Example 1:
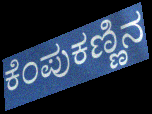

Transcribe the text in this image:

ಕೆಂಪುಕಣ್ಣಿನ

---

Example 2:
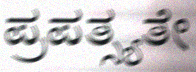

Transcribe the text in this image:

ಪ್ರಪತ್ಸ್ಯತೇ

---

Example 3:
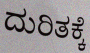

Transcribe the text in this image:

ದುರಿತಕ್ಕೆ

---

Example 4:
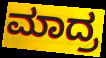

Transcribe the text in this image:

ಮಾದ್ರ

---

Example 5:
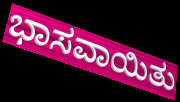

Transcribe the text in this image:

ಭಾಸವಾಯಿತು